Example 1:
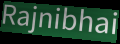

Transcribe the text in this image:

Rajnibhai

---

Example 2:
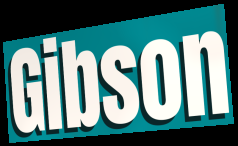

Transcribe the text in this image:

Gibson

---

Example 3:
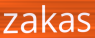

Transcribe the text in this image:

zakas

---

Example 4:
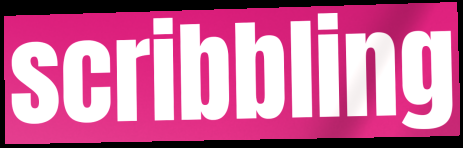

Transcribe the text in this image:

scribbling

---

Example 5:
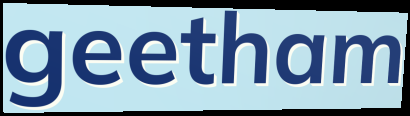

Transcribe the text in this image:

geetham